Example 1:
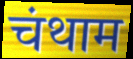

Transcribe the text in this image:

चंथाम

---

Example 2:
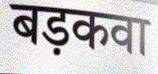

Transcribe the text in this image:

बड़कवा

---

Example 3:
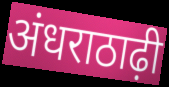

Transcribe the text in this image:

अंधराठाढ़ी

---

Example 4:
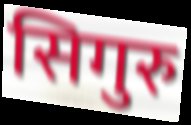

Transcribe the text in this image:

सिगुरु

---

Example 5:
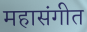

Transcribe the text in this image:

महासंगीत